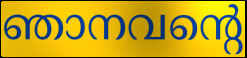
ഞാനവന്റെ